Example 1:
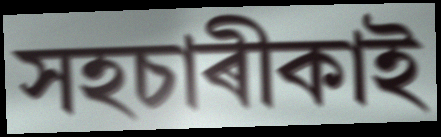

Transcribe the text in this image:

সহচাৰীকাই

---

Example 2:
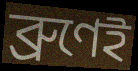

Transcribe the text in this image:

ব্ৰুণেই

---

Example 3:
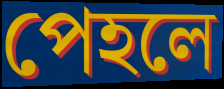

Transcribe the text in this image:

পেহলে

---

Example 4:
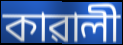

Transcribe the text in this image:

কাৱালী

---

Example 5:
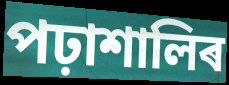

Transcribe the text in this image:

পঢ়াশালিৰ